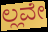
ಲ್ಲವೇ